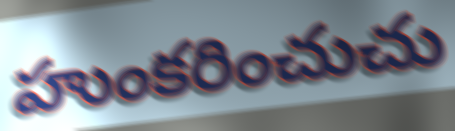
హుంకరించుచు